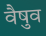
वैषुव